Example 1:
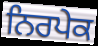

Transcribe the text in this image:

ਨਿਰਪੇਕ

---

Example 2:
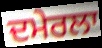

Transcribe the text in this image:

ਦਮੇਰਲਾ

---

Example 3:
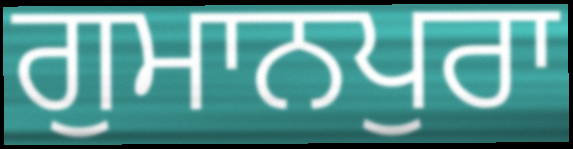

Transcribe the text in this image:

ਗੁਮਾਨਪੁਰਾ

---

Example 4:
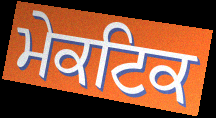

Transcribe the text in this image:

ਮੇਕਟਿਕ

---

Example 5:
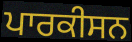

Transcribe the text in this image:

ਪਾਰਕੀਸਨ